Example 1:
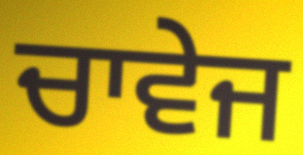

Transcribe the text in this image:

ਚਾਵੇਜ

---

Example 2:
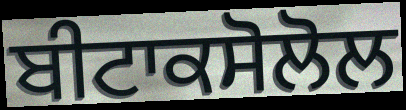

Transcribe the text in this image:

ਬੀਟਾਕਸੋਲੋਲ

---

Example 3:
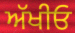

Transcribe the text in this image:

ਅੱਖੀਓ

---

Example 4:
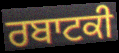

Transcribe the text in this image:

ਰਬਾਟਕੀ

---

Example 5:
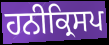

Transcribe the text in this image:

ਹਨੀਕ੍ਰਿਸਪ